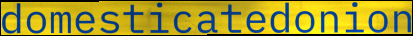
domesticatedonion